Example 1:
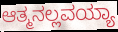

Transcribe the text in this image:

ಆತ್ಮನಲ್ಲವಯ್ಯಾ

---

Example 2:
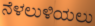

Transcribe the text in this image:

ನೆಳಲುಳಿಯಲು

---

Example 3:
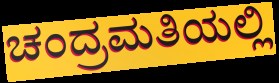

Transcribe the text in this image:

ಚಂದ್ರಮತಿಯಲ್ಲಿ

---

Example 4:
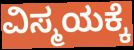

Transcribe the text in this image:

ವಿಸ್ಮಯಕ್ಕೆ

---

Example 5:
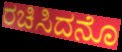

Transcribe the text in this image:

ರಚಿಸಿದನೊ